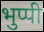
भुप्पी